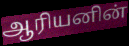
ஆரியனின்